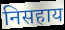
निसहाय